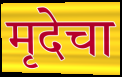
मृदेचा